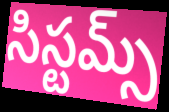
సిస్టమ్స్